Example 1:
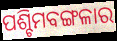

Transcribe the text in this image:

ପଶ୍ଚିମବଙ୍ଗଳାର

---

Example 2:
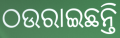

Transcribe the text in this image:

ଠଉରାଇଛନ୍ତି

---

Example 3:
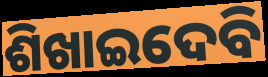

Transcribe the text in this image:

ଶିଖାଇଦେବି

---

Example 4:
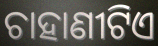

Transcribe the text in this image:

ଚାହାଣୀଟିଏ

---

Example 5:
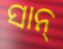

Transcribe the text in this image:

ସାନ୍